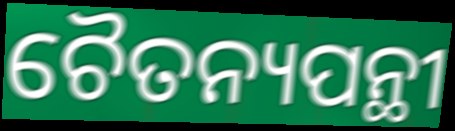
ଚୈତନ୍ୟପନ୍ଥୀ